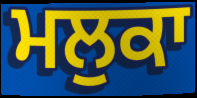
ਮਲੁਕਾ